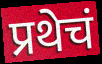
प्रथेचं